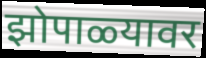
झोपाळ्यावर